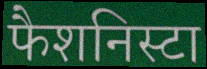
फैशनिस्टा